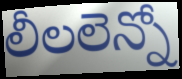
లీలలెన్నో